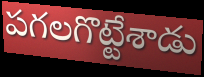
పగలగొట్టేశాడు